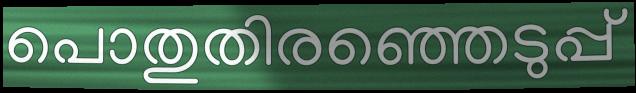
പൊതുതിരഞ്ഞെടുപ്പ്